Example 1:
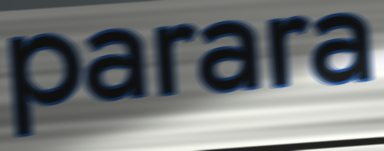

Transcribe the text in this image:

parara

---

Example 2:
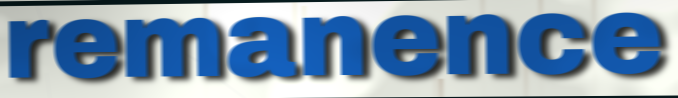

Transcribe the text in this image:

remanence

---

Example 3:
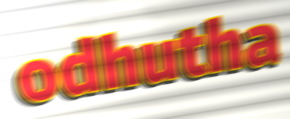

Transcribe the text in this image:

odhutha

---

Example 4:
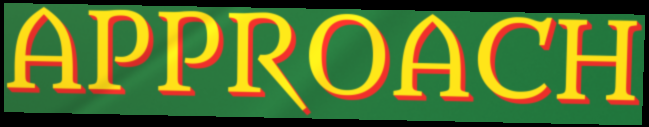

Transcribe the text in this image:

APPROACH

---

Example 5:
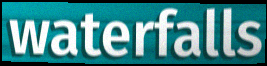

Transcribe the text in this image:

waterfalls